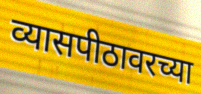
व्यासपीठावरच्या